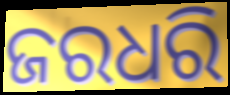
ଜରଧରି